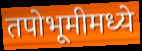
तपोभूमीमध्ये